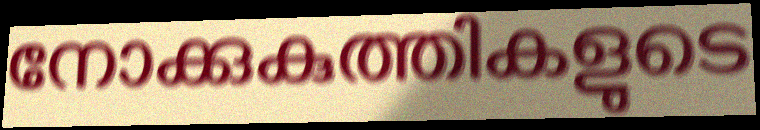
നോക്കുകുത്തികളുടെ